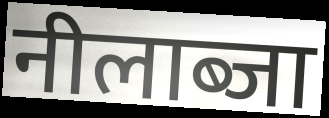
नीलाब्जा